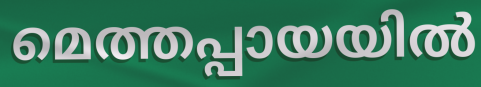
മെത്തപ്പായയിൽ